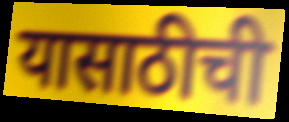
यासाठीची